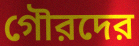
গৌরদের